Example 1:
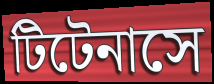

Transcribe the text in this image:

টিটেনাসে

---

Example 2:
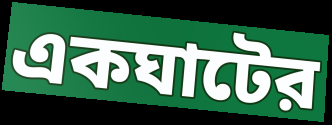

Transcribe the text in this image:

একঘাটের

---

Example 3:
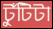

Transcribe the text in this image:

টুঁটিটা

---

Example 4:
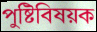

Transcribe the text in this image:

পুষ্টিবিষয়ক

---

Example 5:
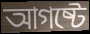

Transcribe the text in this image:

আগষ্টে